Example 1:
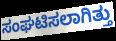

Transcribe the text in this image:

ಸಂಘಟಿಸಲಾಗಿತ್ತು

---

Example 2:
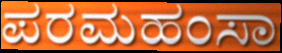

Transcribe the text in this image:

ಪರಮಹಂಸಾ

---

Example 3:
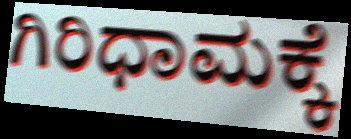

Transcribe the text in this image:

ಗಿರಿಧಾಮಕ್ಕೆ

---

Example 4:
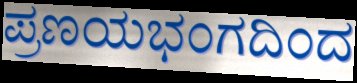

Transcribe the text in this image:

ಪ್ರಣಯಭಂಗದಿಂದ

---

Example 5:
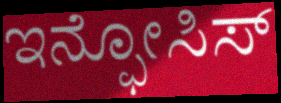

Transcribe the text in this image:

ಇನ್ಫೋಸಿಸ್